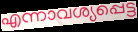
എന്നാവശ്യപ്പെട്ട